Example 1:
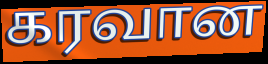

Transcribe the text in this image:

கரவான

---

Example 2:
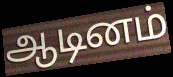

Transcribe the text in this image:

ஆடினம்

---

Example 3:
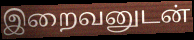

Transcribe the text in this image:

இறைவனுடன்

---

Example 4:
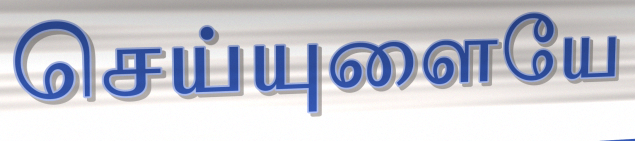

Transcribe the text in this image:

செய்யுளையே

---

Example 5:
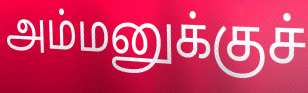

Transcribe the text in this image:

அம்மனுக்குச்